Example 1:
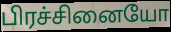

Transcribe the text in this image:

பிரச்சினையோ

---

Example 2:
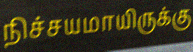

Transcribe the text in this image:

நிச்சயமாயிருக்கு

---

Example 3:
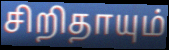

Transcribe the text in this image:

சிறிதாயும்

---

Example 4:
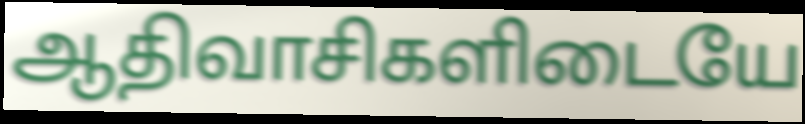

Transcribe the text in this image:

ஆதிவாசிகளிடையே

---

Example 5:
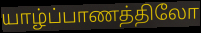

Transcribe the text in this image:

யாழ்ப்பாணத்திலோ